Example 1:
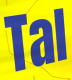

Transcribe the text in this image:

Tal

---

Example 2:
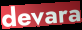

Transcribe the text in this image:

devara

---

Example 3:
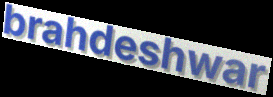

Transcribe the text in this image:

brahdeshwar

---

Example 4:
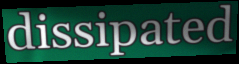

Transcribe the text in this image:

dissipated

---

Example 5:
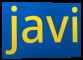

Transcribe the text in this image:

javi